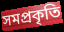
সমপ্রকৃতি